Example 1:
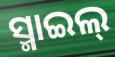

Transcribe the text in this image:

ସ୍ମାଇଲ୍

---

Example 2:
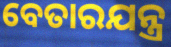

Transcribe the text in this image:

ବେତାରଯନ୍ତ୍ର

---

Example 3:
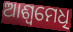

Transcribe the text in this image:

ଆଶ୍ୱମେଧି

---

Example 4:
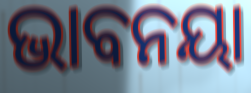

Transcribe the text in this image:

ଭାବନୟା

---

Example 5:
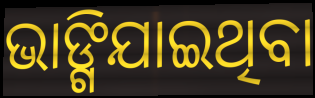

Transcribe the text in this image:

ଭାଙ୍ଗିଯାଇଥିବା